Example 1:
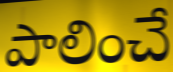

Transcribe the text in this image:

పాలించే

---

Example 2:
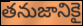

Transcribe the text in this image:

తనుజానికై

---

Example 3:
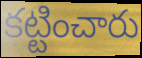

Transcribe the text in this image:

కట్టించారు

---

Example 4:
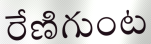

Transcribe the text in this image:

రేణిగుంట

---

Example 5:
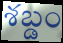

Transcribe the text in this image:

శబ్డం